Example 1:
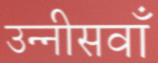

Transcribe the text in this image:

उन्‍नीसवाँ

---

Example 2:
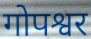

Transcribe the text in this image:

गोपश्वर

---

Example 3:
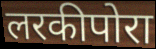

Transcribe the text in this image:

लरकीपोरा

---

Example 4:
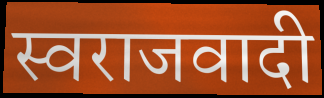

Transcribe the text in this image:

स्वराजवादी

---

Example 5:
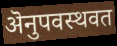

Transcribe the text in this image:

ऄनुपवस्थवत